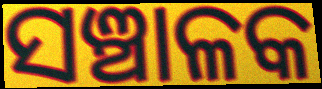
ସଞ୍ଚାଳକ